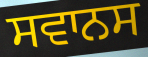
ਸਵਾਨਸ